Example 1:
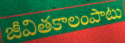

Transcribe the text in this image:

జీవితకాలంపాటు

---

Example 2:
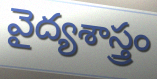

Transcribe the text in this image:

వైద్యశాస్త్రం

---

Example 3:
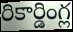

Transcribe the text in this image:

రికార్డింగ్ల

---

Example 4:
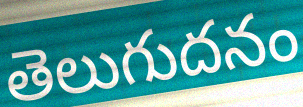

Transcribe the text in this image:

తెలుగుదనం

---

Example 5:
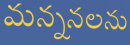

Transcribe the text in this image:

మన్ననలను